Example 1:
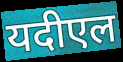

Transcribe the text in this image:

यदीएल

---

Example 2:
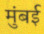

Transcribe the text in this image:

मुंबई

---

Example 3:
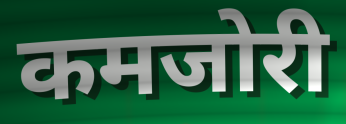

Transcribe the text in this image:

कमजोरी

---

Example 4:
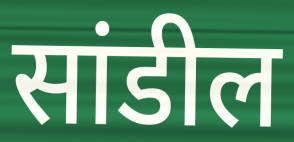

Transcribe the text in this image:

सांडील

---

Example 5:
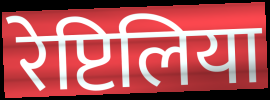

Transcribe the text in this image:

रेप्टिलिया